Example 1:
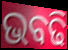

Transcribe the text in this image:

ଭବଢି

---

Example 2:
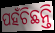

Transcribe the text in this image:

ପହଁଚିଛନ୍ତି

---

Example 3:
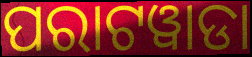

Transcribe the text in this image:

ପରାଟୱାଡା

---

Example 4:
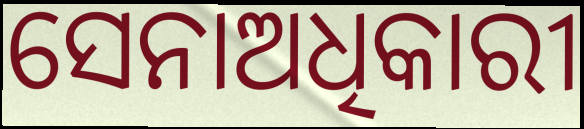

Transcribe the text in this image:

ସେନାଅଧିକାରୀ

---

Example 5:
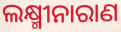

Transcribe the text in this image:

ଲକ୍ଷ୍ମୀନାରାଣ